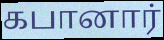
கபானார்